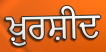
ਖ਼ੁਰਸ਼ੀਦ